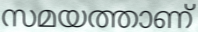
സമയത്താണ്